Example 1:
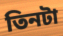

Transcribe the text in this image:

তিনটা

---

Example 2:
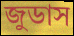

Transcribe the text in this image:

জুডাস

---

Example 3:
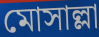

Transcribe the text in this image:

মোসাল্লা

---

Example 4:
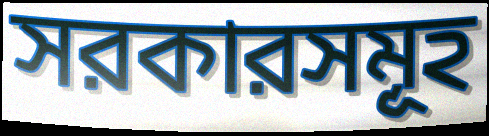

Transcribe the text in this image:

সরকারসমূহ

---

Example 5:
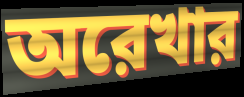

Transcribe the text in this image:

অরেখার